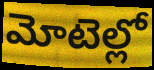
మోటెల్లో